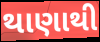
થાણાથી